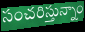
సంచరిస్తున్నాం